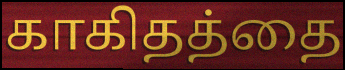
காகிதத்தை